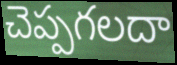
చెప్పగలదా